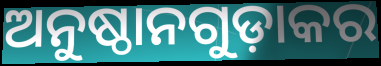
ଅନୁଷ୍ଠାନଗୁଡ଼ାକର